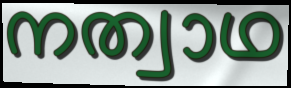
നത്വാഥ